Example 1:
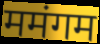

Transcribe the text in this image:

ममंगम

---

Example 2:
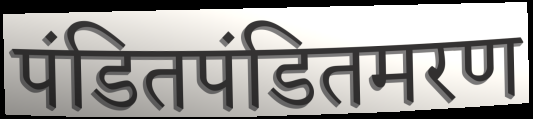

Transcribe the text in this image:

पंडितपंडितमरण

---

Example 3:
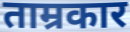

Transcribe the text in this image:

ताम्रकार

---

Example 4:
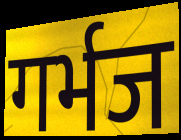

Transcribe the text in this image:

गर्भज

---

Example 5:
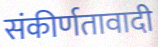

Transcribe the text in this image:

संकीर्णतावादी